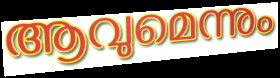
ആവുമെന്നും